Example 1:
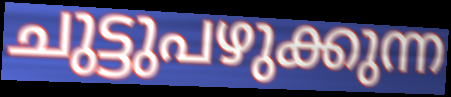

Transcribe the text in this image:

ചുട്ടുപഴുക്കുന്ന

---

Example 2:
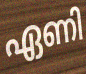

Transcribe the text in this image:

ഏണി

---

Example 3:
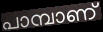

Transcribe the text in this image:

പാമ്പാണ്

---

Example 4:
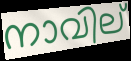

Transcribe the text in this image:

നാവില്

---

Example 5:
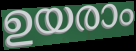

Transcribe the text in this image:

ഉയരാം